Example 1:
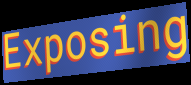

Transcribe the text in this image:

Exposing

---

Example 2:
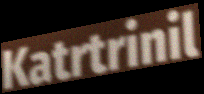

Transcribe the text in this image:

Katrtrinil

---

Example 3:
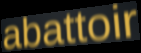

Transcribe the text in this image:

abattoir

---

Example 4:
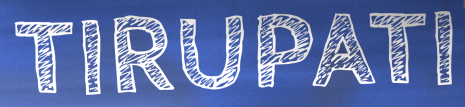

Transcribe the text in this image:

TIRUPATI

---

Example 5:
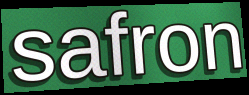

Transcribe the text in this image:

safron